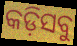
କଡ଼ିସବୁ